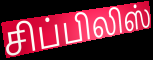
சிப்பிலிஸ்